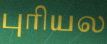
புரியல